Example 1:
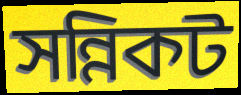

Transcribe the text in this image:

সন্নিকট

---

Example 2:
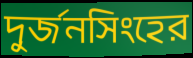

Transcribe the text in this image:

দুর্জনসিংহের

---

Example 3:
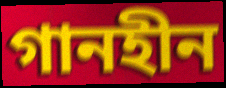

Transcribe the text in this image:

গানহীন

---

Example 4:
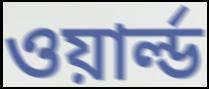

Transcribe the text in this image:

ওয়ার্ল্ড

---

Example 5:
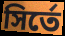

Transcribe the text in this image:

সির্তে